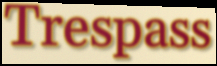
Trespass